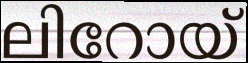
ലിറോയ്